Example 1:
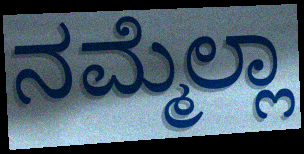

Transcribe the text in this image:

ನಮ್ಮೆಲ್ಲಾ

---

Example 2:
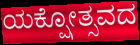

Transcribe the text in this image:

ಯಕ್ಷೋತ್ಸವದ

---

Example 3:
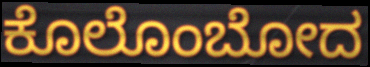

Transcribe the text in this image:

ಕೊಲೊಂಬೋದ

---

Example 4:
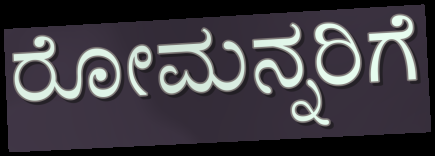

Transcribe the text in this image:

ರೋಮನ್ನರಿಗೆ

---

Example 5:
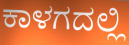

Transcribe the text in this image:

ಕಾಳಗದಲ್ಲಿ